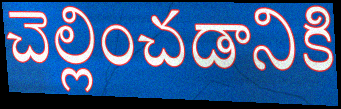
చెల్లించడానికి